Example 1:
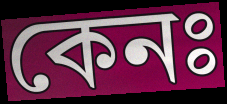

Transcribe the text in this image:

কেনঃ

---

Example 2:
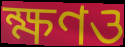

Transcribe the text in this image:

ক্ষণও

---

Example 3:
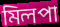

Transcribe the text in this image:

মিলপা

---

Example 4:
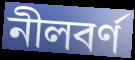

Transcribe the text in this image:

নীলবর্ণ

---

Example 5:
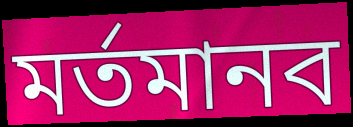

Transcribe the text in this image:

মর্তমানব